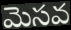
మెసవ